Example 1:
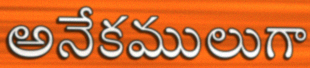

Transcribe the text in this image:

అనేకములుగా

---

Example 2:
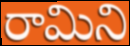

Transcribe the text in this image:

రామిని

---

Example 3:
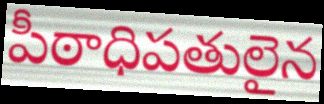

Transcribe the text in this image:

పీఠాధిపతులైన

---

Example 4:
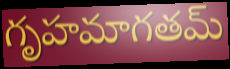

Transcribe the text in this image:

గృహమాగతమ్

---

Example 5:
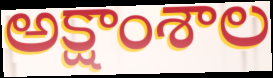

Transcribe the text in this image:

అక్షాంశాల